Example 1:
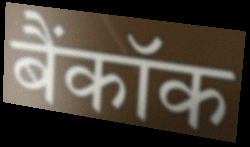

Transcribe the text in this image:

बैंकॉक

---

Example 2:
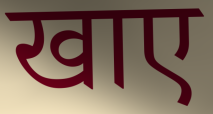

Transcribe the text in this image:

खाए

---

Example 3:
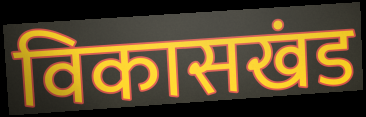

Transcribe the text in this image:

विकासखंड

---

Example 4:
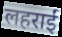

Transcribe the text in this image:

लहराईं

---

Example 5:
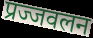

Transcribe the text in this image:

प्रज्जवलन